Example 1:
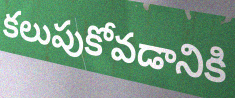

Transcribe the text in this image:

కలుపుకోవడానికి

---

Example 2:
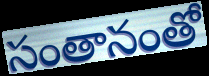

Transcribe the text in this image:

సంతానంతో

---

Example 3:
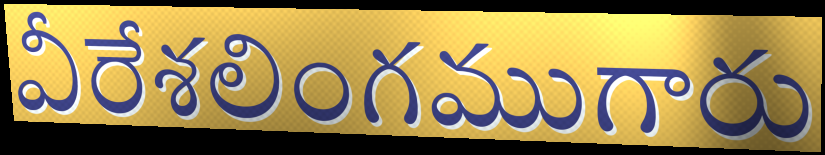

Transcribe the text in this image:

వీరేశలింగముగారు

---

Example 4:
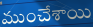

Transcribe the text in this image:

ముంచేశాయి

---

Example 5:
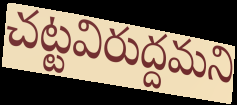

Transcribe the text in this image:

చట్టవిరుద్దమని